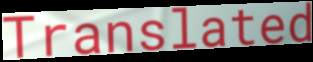
Translated